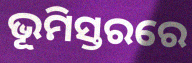
ଭୂମିସ୍ତରରେ